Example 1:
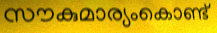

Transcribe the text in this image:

സൗകുമാര്യംകൊണ്ട്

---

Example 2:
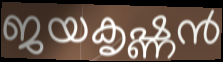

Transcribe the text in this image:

ജയകൃഷ്ണൻ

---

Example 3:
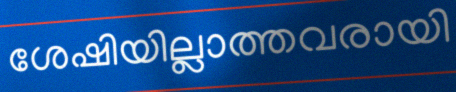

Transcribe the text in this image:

ശേഷിയില്ലാത്തവരായി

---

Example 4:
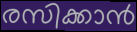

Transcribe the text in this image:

രസിക്കാൻ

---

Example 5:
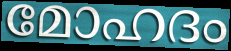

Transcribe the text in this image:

മോഹദം